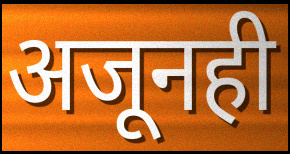
अजूनही